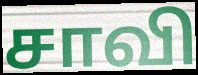
சாவி